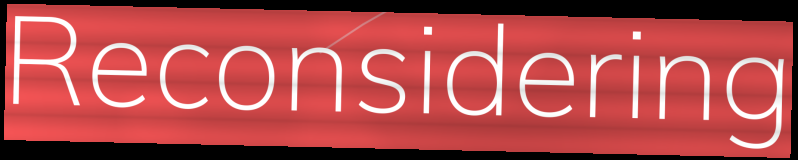
Reconsidering